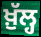
ਖ਼ੁੱਲ੍ਹ